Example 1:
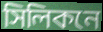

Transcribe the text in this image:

সিলিকনে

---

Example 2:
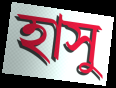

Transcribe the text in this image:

হাসু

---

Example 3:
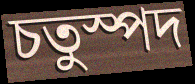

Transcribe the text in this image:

চতুস্পদ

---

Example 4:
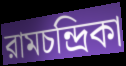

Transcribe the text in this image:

রামচন্দ্রিকা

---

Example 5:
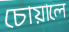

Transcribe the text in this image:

চোয়ালে